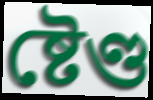
ষ্টেণ্ড